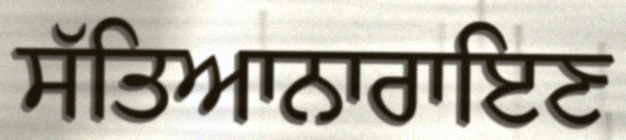
ਸੱਤਿਆਨਾਰਾਇਣ